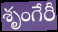
శృంగేరీ